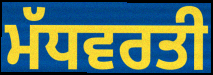
ਮੱਧਵਰਤੀ